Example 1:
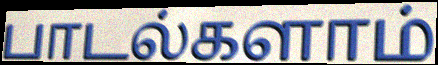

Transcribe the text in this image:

பாடல்களாம்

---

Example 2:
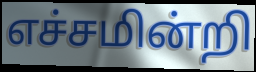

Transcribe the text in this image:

எச்சமின்றி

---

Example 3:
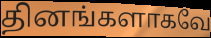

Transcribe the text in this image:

தினங்களாகவே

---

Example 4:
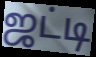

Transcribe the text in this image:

ஜட்டி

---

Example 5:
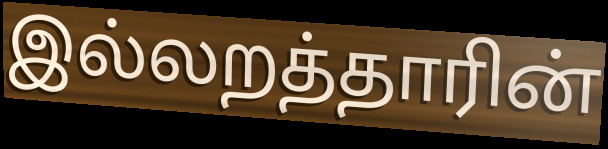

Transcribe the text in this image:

இல்லறத்தாரின்